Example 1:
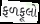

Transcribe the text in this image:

ફળફૂલો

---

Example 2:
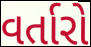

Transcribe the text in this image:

વર્તારો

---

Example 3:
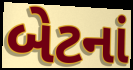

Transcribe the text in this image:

બેટનાં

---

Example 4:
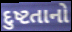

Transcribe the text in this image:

દુષ્ટતાનો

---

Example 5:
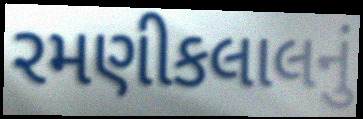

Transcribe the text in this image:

રમણીકલાલનું